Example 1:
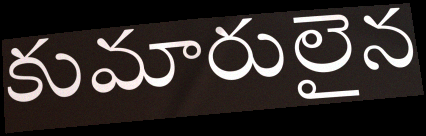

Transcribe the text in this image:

కుమారులైన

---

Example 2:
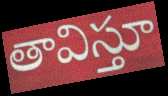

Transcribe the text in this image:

తావిస్తూ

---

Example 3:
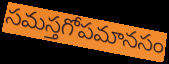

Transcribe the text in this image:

సమస్తగోపమానసం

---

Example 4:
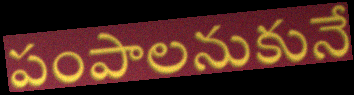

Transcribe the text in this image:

పంపాలనుకునే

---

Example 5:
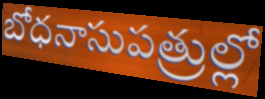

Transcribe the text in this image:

బోధనాసుపత్రుల్లో